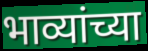
भाव्यांच्या